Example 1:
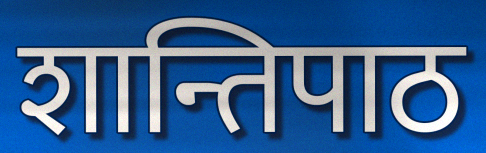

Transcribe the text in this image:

शान्तिपाठ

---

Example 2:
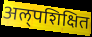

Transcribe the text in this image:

अल्पशिक्षित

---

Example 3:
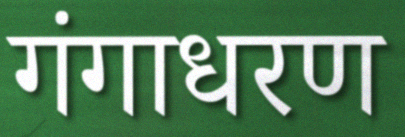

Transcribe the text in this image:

गंगाधरण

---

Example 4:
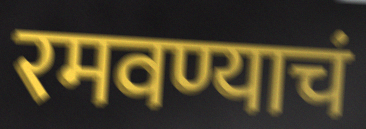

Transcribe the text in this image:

रमवण्याचं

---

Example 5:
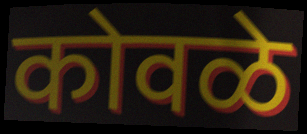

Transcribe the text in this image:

कोवळे